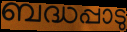
ബദ്ധപ്പാടു